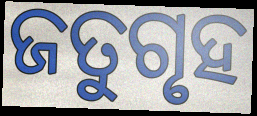
ଜତୁଗୃହ